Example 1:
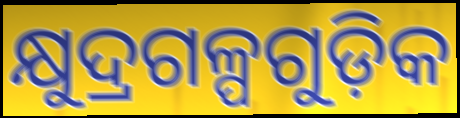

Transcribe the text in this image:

କ୍ଷୁଦ୍ରଗଳ୍ପଗୁଡ଼ିକ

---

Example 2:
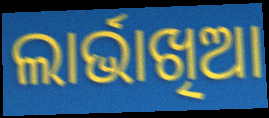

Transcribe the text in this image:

ଲାର୍ଭାଖିଆ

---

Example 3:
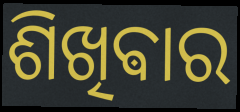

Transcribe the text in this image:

ଶିଖିଵାର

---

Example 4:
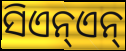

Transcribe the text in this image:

ସିଏନ୍ଏନ୍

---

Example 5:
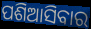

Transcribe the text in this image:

ପଶିଆସିବାର